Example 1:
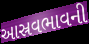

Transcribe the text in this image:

આસ્રવભાવની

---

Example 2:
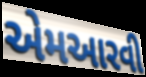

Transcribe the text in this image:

એમઆરવી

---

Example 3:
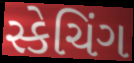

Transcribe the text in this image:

સ્કેચિંગ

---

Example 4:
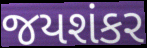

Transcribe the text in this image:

જયશંકર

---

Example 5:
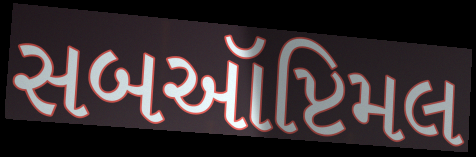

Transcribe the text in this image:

સબઑપ્ટિમલ